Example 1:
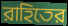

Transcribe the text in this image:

রাহিতের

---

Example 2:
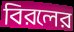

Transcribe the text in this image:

বিরলের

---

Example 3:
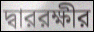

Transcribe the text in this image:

দ্বাররক্ষীর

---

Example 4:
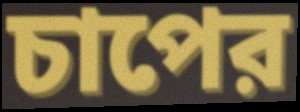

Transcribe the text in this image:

চাপের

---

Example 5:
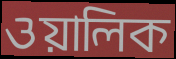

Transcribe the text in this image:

ওয়ালিক